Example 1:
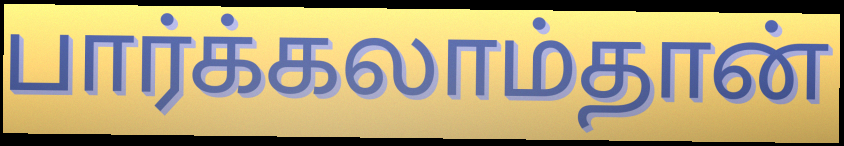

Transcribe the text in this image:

பார்க்கலாம்தான்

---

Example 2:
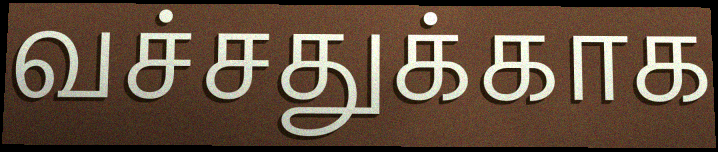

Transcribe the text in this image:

வச்சதுக்காக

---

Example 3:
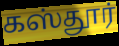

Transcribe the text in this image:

கஸ்தூர்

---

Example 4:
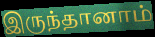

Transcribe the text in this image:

இருந்தானாம்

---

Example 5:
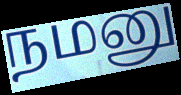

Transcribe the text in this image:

நமனு